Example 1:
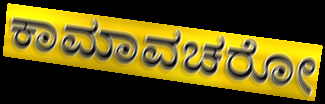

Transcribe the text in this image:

ಕಾಮಾವಚರೋ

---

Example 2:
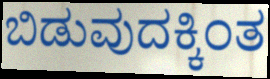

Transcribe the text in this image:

ಬಿಡುವುದಕ್ಕಿಂತ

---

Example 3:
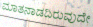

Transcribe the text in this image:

ಮಾತನಾಡದಿರುವುದೇ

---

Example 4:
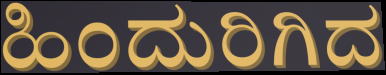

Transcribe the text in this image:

ಹಿಂದುರಿಗಿದ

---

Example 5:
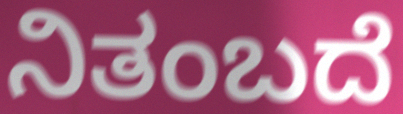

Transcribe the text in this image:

ನಿತಂಬದೆ